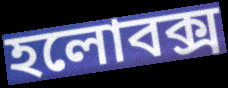
হলোবক্স